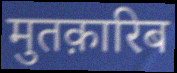
मुतक़ारिब